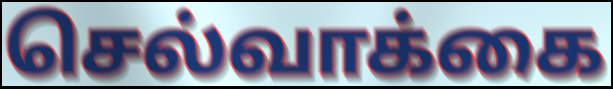
செல்வாக்கை